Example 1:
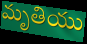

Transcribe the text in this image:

మృతియు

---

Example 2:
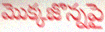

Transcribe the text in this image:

మొక్కజొన్నపై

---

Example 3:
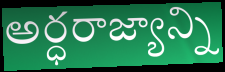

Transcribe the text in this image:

అర్ధరాజ్యాన్ని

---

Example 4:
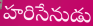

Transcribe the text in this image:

హరిసేనుడు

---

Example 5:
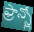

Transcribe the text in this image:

ఫ్రాన్స్లో